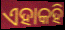
ଏହାକହି